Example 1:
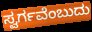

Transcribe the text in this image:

ಸ್ವರ್ಗವೆಂಬುದು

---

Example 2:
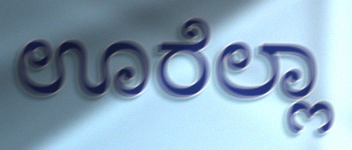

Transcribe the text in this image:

ಊರೆಲ್ಲಾ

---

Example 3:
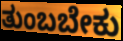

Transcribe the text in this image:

ತುಂಬಬೇಕು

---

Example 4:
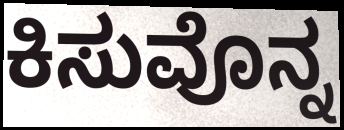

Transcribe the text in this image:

ಕಿಸುವೊನ್ನ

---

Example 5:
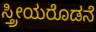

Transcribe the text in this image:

ಸ್ತ್ರೀಯರೊಡನೆ